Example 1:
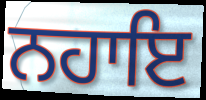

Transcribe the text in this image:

ਨਹਾਇ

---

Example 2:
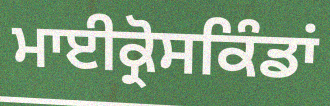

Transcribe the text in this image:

ਮਾਈਕ੍ਰੋਸਕਿੰਡਾਂ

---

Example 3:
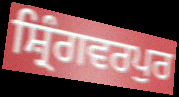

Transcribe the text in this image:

ਸ਼੍ਰਿੰਗਵਰਪੁਰ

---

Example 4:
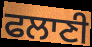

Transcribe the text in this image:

ਫਲਾਣੀ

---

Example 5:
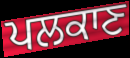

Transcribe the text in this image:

ਪਲਕਾਣ